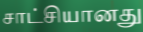
சாட்சியானது